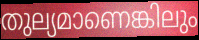
തുല്യമാണെങ്കിലും